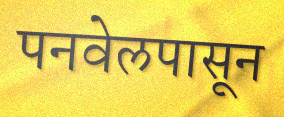
पनवेलपासून